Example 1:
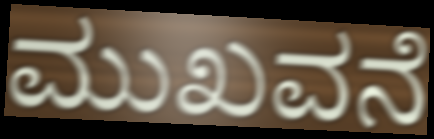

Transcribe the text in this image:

ಮುಖವನೆ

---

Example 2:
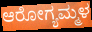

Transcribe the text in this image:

ಆರೋಗ್ಯಮ್ಮಳ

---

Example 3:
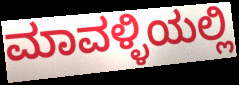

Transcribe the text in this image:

ಮಾವಳ್ಳಿಯಲ್ಲಿ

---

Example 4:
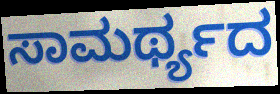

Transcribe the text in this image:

ಸಾಮರ್ಥ್ಯದ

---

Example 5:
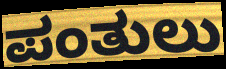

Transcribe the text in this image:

ಪಂತುಲು